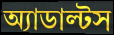
অ্যাডাল্টস